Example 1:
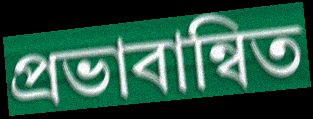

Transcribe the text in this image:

প্রভাবান্বিত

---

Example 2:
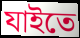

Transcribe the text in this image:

যাইতে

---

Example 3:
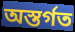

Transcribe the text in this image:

অস্তর্গত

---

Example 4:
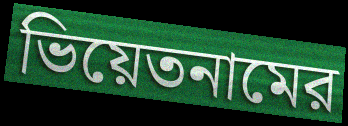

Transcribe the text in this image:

ভিয়েতনামের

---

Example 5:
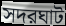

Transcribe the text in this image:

সদরঘাট